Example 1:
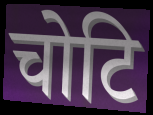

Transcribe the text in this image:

चोटि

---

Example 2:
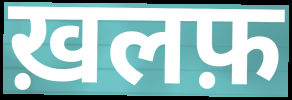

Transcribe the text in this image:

ख़लफ़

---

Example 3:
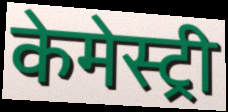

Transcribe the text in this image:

केमेस्ट्री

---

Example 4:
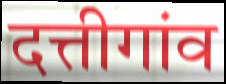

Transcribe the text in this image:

दत्तीगांव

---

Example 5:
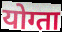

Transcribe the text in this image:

योग्ता